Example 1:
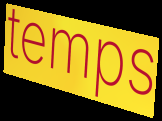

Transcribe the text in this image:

temps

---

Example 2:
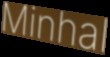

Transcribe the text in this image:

Minhal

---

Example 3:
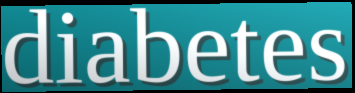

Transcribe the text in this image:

diabetes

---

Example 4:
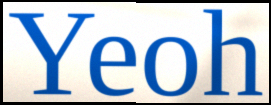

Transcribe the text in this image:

Yeoh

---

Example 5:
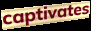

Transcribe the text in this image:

captivates